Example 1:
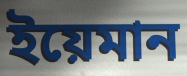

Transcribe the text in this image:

ইয়েমান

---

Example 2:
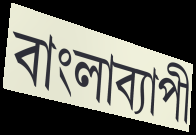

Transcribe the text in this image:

বাংলাব্যাপী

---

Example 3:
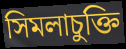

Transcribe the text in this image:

সিমলাচুক্তি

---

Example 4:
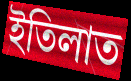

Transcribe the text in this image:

ইতিলাত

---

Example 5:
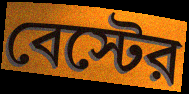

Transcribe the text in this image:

বেস্টের